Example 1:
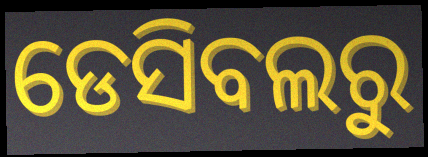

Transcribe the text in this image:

ଡେସିବଲରୁ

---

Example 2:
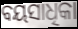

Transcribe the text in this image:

ବୟସାଧିକା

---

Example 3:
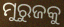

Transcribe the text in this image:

ମୁରୁଜକୁ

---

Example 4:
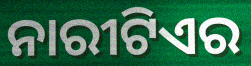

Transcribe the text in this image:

ନାରୀଟିଏର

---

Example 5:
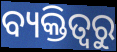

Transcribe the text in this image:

ବ୍ୟକ୍ତିତ୍ଵରୁ